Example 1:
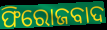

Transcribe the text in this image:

ଫିରୋଜବାଦ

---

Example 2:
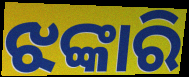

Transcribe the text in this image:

ଝଙ୍କାରି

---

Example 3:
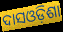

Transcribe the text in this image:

ଦାସଓଡ଼ିଶା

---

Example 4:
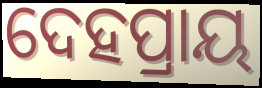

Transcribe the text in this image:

ଦେହପ୍ରାୟ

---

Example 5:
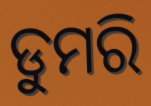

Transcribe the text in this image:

ଡୁମରି